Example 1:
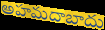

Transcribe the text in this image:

అహమదాబాదు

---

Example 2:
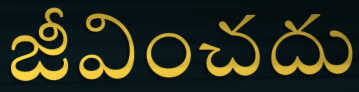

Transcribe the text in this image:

జీవించదు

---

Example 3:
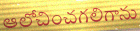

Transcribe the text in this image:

ఆలోచించగలిగాను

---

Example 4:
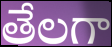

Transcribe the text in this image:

తేలగా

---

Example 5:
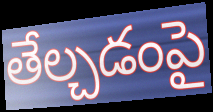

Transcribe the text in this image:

తేల్చడంపై